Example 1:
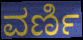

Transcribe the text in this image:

ವರ್ಣಿ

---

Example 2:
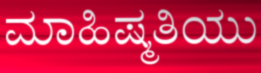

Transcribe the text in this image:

ಮಾಹಿಷ್ಮತಿಯು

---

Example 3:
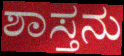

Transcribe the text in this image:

ಶಾಸ್ತನು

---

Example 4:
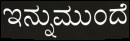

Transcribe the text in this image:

ಇನ್ನುಮುಂದೆ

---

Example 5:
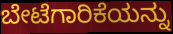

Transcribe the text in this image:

ಬೇಟೆಗಾರಿಕೆಯನ್ನು